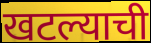
खटल्याची